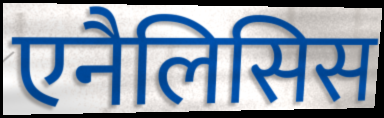
एनैलिसिस